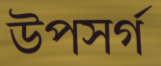
উপসৰ্গ